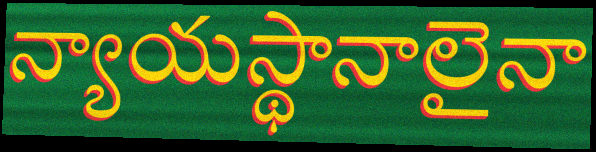
న్యాయస్థానాలైనా